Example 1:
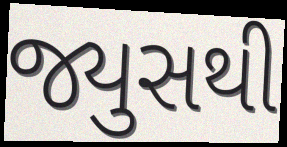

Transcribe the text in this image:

જ્યુસથી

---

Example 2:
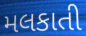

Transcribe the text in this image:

મલકાતી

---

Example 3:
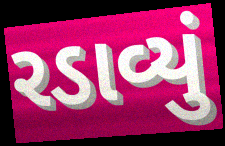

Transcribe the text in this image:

રડાવ્યું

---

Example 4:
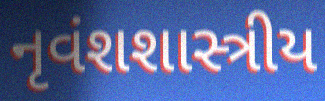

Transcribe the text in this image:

નૃવંશશાસ્ત્રીય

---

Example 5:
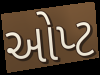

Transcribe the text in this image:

ઓપ્ટ